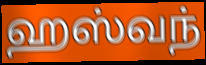
ஹஸ்வந்